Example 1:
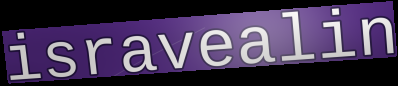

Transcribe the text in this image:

isravealin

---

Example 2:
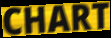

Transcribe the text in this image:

CHART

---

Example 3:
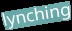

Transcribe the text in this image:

lynching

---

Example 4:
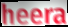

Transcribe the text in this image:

heera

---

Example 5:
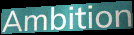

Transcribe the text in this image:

Ambition